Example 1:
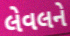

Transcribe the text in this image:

લેવલને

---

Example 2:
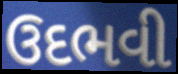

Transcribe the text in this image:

ઉદભવી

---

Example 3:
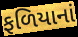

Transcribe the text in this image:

ફળિયાનાં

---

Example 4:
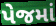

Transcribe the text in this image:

પેજમાં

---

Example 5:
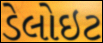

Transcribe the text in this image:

ડેલોઇટ